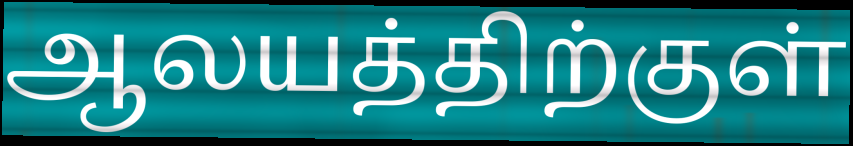
ஆலயத்திற்குள்